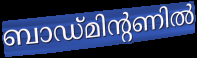
ബാഡ്മിന്റണിൽ